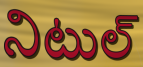
నిటుల్